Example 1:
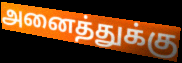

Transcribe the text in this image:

அனைத்துக்கு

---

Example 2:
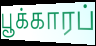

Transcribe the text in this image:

பூக்காரப்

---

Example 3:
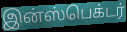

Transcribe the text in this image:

இன்ஸ்பெக்டர்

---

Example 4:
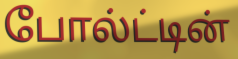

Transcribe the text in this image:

போல்ட்டின்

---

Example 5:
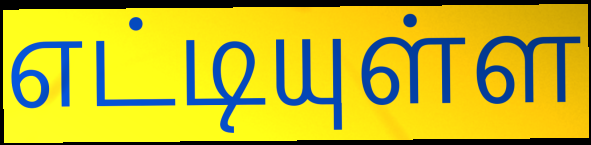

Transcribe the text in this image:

எட்டியுள்ள